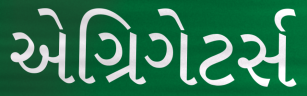
એગ્રિગેટર્સ